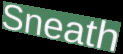
Sneath